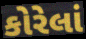
કોરેલાં